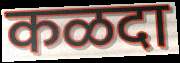
कळदा